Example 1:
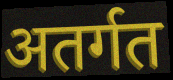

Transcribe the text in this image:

अतर्गत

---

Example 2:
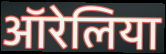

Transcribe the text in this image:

ऑरेलिया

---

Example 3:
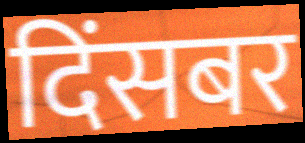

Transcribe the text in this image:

दिंसबर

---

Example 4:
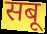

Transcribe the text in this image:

सबू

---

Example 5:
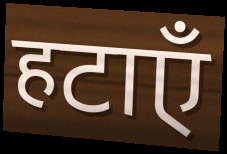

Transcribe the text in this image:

हटाएँ